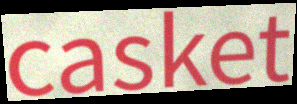
casket